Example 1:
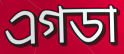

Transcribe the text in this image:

এগডা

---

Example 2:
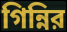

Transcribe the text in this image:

গিন্নির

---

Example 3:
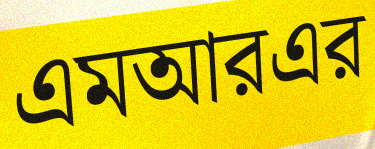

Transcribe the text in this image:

এমআরএর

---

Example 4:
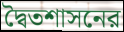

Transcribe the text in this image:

দ্বৈতশাসনের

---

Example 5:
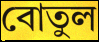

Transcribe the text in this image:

বোতুল